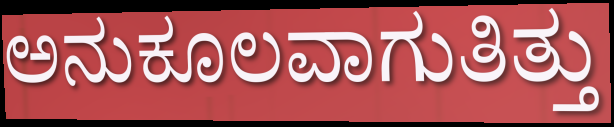
ಅನುಕೂಲವಾಗುತಿತ್ತು